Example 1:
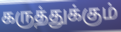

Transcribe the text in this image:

கருத்துக்கும்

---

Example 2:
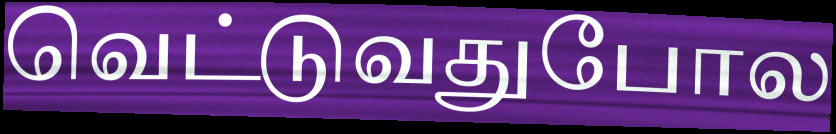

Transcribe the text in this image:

வெட்டுவதுபோல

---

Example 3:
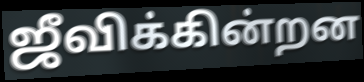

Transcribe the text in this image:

ஜீவிக்கின்றன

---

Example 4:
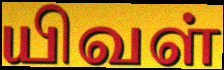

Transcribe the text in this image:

யிவள்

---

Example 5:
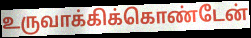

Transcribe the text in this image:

உருவாக்கிக்கொண்டேன்